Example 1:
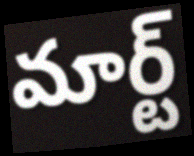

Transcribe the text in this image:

మార్ట్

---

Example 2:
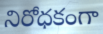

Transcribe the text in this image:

నిరోధకంగా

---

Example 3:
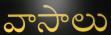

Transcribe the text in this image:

వాసాలు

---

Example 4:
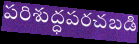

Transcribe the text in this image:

పరిశుద్ధపరచబడి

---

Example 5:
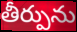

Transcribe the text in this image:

తీర్పును